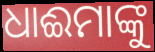
ଧାଈମାଙ୍କୁ